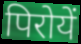
पिरोयें